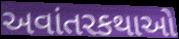
અવાંતરકથાઓ